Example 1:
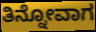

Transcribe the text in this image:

ತಿನ್ನೋವಾಗ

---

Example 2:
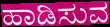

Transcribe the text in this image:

ಹಾಡಿಸುವ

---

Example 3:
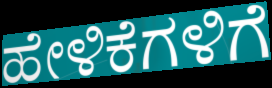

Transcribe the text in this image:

ಹೇಳಿಕೆಗಳಿಗೆ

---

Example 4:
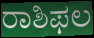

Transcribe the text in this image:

ರಾಶಿಫಲ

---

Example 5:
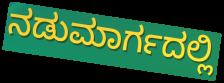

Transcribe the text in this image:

ನಡುಮಾರ್ಗದಲ್ಲಿ